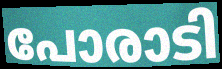
പോരാടി